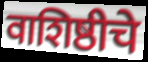
वाशिष्ठीचे